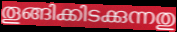
തൂങ്ങിക്കിടക്കുന്നതു